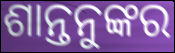
ଶାନ୍ତନୁଙ୍କର